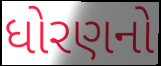
ધોરણનો